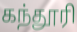
கந்தூரி